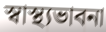
স্বাস্থ্যভাবনা